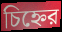
চিহ্নের